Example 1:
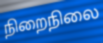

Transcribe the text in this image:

நிறைநிலை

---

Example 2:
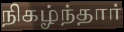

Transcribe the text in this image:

நிகழ்ந்தார்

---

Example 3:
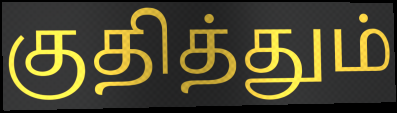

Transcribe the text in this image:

குதித்தும்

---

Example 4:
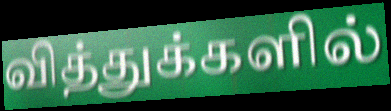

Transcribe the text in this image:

வித்துக்களில்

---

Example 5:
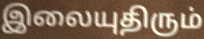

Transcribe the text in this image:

இலையுதிரும்